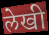
लेखी